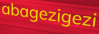
abagezigezi